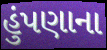
હુંપણાના